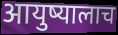
आयुष्यालाच